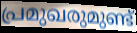
പ്രമുഖരുമുണ്ട്